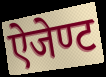
ऐजेण्ट